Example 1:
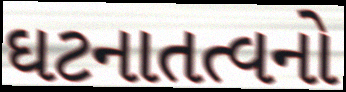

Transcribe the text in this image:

ઘટનાતત્વનો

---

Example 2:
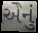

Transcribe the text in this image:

એેનું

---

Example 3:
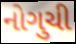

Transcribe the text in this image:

નોગુચી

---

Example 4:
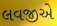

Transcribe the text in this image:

લવજીએ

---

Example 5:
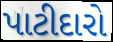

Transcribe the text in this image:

પાટીદારો